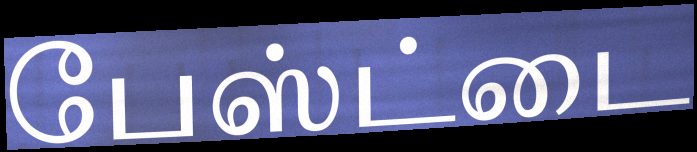
பேஸ்ட்டை